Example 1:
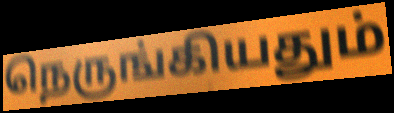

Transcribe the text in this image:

நெருங்கியதும்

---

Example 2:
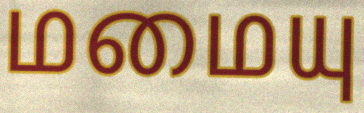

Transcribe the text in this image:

மமையு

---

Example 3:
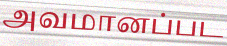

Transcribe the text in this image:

அவமானப்பட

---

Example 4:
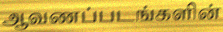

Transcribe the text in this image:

ஆவணப்படங்களின்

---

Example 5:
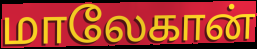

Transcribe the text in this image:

மாலேகான்